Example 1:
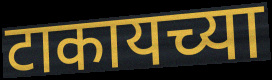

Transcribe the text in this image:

टाकायच्या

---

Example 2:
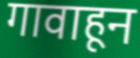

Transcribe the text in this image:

गावाहून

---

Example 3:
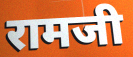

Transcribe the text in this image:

रामजी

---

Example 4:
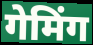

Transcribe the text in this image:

गेमिंग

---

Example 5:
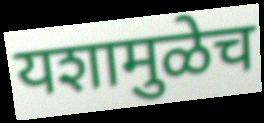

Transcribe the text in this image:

यशामुळेच